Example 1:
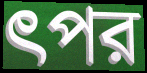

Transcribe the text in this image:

ৎপর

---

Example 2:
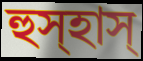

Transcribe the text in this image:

হুস্হাস্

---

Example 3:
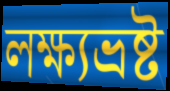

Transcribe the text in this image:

লক্ষ্যভ্রষ্ট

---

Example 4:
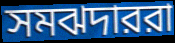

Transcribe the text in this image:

সমঝদাররা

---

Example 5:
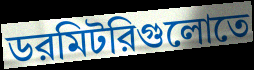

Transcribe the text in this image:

ডরমিটরিগুলোতে